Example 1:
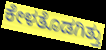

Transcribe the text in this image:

ಕೇಳತೊಡಗಿತ್ತು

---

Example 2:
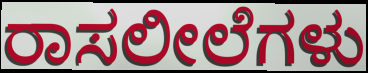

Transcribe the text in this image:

ರಾಸಲೀಲೆಗಳು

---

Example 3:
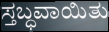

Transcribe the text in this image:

ಸ್ತಬ್ಧವಾಯಿತು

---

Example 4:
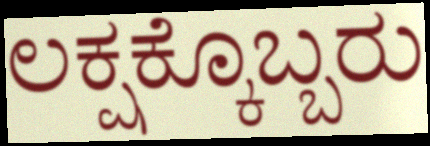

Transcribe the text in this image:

ಲಕ್ಷಕ್ಕೊಬ್ಬರು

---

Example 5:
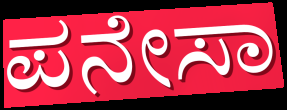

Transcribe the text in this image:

ಪನೇಸಾ